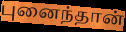
புனைந்தான்